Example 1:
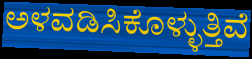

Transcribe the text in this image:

ಅಳವಡಿಸಿಕೊಳ್ಳುತ್ತಿವೆ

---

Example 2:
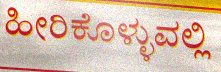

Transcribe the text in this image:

ಹೀರಿಕೊಳ್ಳುವಲ್ಲಿ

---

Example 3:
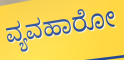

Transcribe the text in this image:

ವ್ಯವಹಾರೋ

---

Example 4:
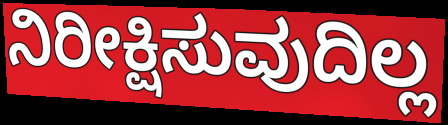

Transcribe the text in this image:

ನಿರೀಕ್ಷಿಸುವುದಿಲ್ಲ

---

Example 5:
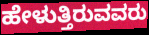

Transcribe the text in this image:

ಹೇಳುತ್ತಿರುವವರು